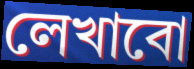
লেখাবো